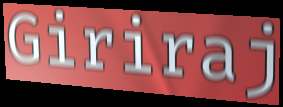
Giriraj